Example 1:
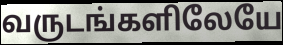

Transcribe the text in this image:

வருடங்களிலேயே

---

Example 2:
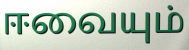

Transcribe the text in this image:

ஈவையும்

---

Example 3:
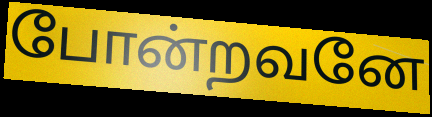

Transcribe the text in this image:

போன்றவனே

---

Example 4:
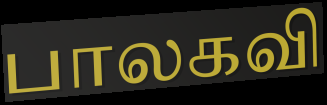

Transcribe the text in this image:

பாலகவி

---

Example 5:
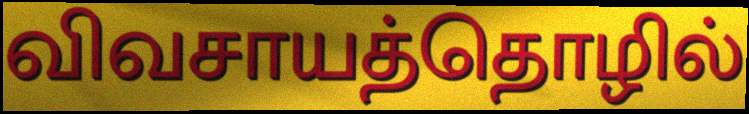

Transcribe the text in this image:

விவசாயத்தொழில்